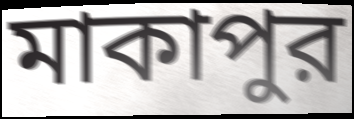
মাকাপুর